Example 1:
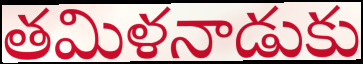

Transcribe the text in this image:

తమిళనాడుకు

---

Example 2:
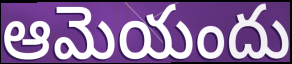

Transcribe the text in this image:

ఆమెయందు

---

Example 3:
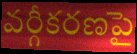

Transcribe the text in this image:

వర్గీకరణపై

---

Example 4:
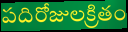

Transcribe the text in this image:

పదిరోజులక్రితం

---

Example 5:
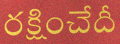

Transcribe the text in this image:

రక్షించేదీ